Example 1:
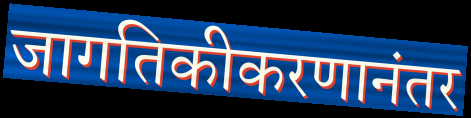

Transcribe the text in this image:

जागतिकीकरणानंतर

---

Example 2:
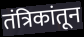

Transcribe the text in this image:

तंत्रिकांतून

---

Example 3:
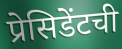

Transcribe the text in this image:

प्रेसिडेंटची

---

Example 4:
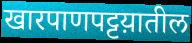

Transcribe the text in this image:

खारपाणपट्टय़ातील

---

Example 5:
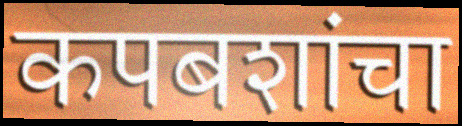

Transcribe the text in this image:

कपबशांचा